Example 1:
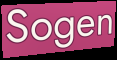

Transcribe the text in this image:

Sogen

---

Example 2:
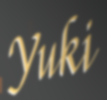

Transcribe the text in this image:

Yuki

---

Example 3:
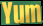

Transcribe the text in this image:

Yum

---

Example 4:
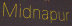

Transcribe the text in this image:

Midnapur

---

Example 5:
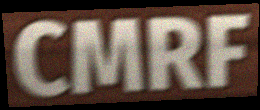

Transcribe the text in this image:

CMRF